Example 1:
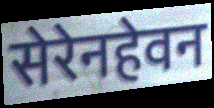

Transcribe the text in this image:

सेरेनहेवन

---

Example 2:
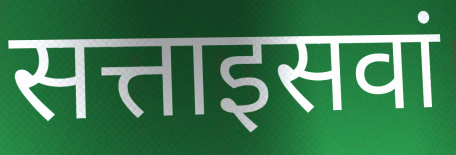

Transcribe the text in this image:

सत्ताइसवां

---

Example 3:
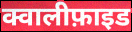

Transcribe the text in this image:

क्वालीफ़ाइड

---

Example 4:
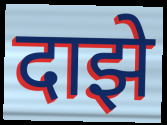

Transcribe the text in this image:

दाझे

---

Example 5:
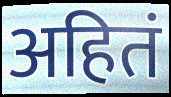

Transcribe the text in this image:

अहितं